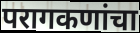
परागकणांचा